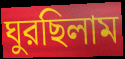
ঘুরছিলাম